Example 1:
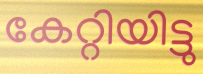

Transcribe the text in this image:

കേറ്റിയിട്ടു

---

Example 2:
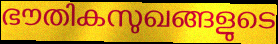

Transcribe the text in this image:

ഭൗതികസുഖങ്ങളുടെ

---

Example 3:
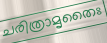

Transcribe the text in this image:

ചരിത്രാമൃതൈഃ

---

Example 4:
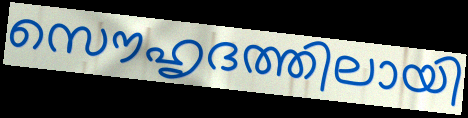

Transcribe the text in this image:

സൌഹൃദത്തിലായി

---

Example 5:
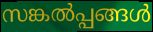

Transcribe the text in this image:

സങ്കൽപ്പങ്ങൾ